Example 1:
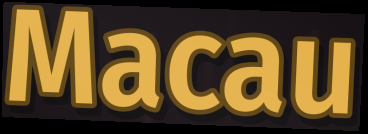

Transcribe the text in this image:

Macau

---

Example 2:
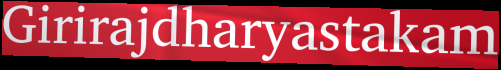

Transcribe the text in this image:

Girirajdharyastakam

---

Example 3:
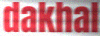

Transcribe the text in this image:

dakhal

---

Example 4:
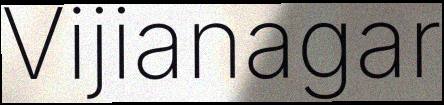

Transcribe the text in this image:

Vijianagar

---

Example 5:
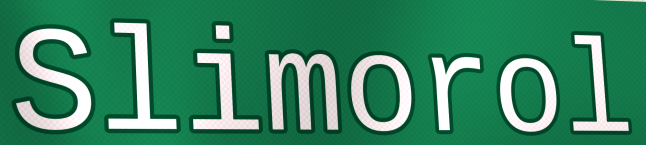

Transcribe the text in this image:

Slimorol